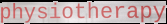
physiotherapy